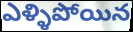
ఎళ్ళిపోయిన